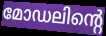
മോഡലിന്റെ